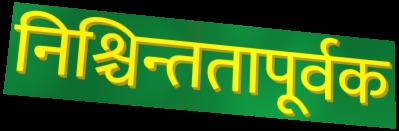
निश्चिन्ततापूर्वक